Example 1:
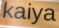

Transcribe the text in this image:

kaiya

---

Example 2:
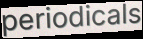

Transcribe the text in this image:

periodicals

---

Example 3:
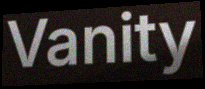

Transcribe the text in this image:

Vanity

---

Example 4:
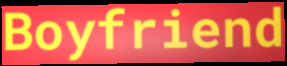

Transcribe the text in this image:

Boyfriend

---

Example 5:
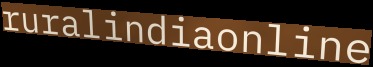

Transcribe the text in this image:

ruralindiaonline